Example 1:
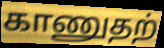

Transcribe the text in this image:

காணுதற்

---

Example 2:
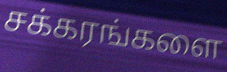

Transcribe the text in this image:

சக்கரங்களை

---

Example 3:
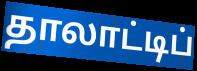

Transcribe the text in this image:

தாலாட்டிப்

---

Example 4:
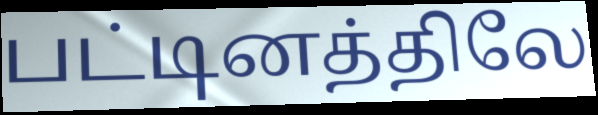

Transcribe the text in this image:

பட்டினத்திலே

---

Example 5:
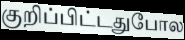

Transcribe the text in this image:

குறிப்பிட்டதுபோல